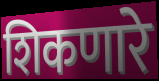
शिकणारे